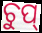
ଚୁପ୍